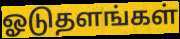
ஓடுதளங்கள்